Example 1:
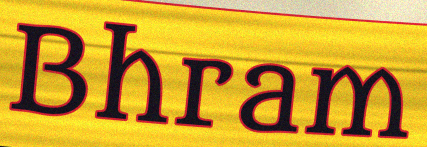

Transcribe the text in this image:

Bhram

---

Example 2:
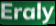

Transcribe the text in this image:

Eraly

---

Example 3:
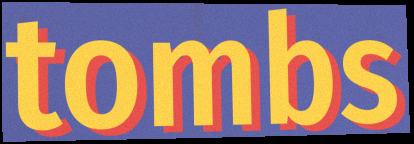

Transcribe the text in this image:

tombs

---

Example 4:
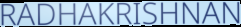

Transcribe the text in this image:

RADHAKRISHNAN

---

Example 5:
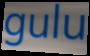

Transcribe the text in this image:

gulu